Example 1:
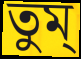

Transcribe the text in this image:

তুম্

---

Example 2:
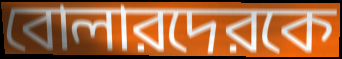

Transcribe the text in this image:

বোলারদেরকে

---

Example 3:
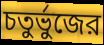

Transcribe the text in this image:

চতুর্ভুজের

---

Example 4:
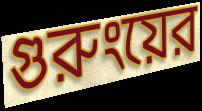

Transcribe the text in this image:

গুরুংয়ের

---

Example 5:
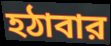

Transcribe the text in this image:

হঠাবার